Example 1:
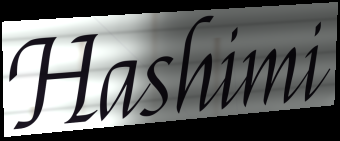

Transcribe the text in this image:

Hashimi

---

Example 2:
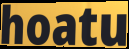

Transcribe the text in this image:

hoatu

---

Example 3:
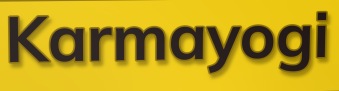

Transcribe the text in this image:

Karmayogi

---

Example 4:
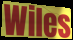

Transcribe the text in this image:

Wiles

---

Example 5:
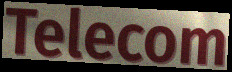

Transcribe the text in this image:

Telecom